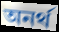
অনৰ্থ